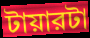
টায়ারটা